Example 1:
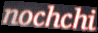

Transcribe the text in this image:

nochchi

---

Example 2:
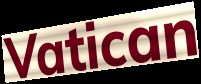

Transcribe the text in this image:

Vatican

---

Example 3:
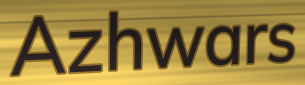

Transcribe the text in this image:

Azhwars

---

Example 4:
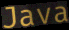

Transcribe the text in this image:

Java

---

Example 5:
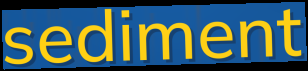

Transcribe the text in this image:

sediment